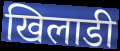
खिलाडी